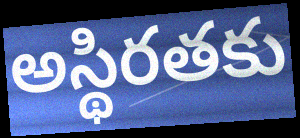
అస్థిరతకు